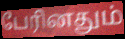
பேரினதும்